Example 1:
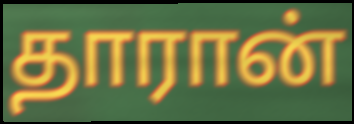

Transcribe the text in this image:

தாரான்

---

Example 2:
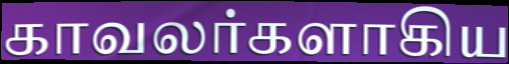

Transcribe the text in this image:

காவலர்களாகிய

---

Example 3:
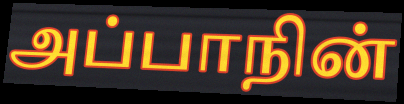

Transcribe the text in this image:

அப்பாநின்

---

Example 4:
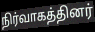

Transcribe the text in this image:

நிர்வாகத்தினர்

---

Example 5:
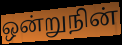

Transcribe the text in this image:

ஒன்றுநின்